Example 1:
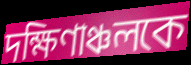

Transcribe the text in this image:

দক্ষিণাঞ্চলকে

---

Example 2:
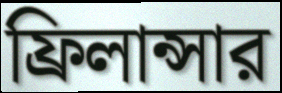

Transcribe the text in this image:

ফ্রিলান্সার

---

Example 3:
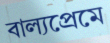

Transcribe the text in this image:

বাল্যপ্রেমে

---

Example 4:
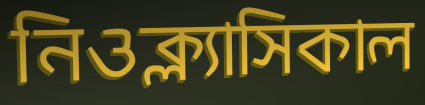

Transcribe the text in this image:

নিওক্ল্যাসিকাল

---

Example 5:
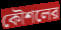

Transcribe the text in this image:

কৌশলের